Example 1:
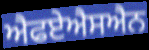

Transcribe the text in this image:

ਐਫਏਐਸਐਨ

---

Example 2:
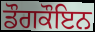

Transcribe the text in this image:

ਡੌਗਕੌਇਨ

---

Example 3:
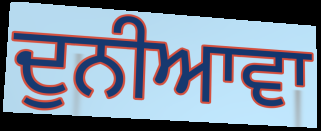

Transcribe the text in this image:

ਦੁਨੀਆਵਾ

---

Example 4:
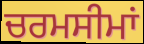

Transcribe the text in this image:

ਚਰਮਸੀਮਾਂ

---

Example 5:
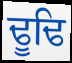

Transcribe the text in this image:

ਢੂਢਿ